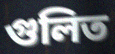
গুলিত